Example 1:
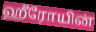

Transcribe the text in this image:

ஹீரோயின்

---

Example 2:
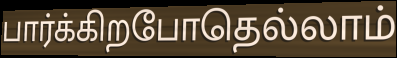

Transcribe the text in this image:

பார்க்கிறபோதெல்லாம்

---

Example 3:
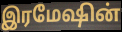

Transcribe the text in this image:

இரமேஷின்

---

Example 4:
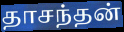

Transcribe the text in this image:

தாசந்தன்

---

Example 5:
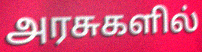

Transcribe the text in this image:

அரசுகளில்